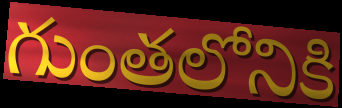
గుంతలోనికి